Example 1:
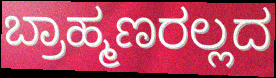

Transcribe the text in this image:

ಬ್ರಾಹ್ಮಣರಲ್ಲದ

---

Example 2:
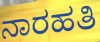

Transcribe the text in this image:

ನಾರಹತಿ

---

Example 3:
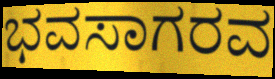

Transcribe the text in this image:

ಭವಸಾಗರವ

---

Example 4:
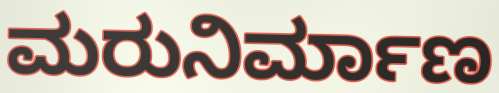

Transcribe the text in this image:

ಮರುನಿರ್ಮಾಣ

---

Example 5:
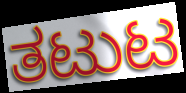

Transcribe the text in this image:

ತಟುಟ